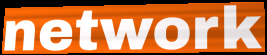
network